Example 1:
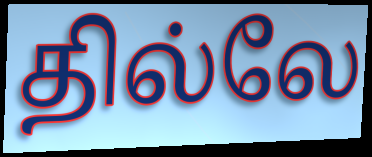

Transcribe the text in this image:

தில்லே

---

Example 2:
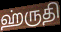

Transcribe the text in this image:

ஹ்ருதி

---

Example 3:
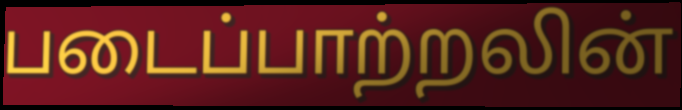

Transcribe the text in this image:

படைப்பாற்றலின்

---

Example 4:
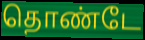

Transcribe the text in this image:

தொண்டே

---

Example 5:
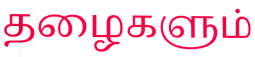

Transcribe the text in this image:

தழைகளும்